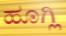
ಹೂಗ್ಲಿ